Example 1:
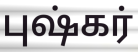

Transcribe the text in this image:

புஷ்கர்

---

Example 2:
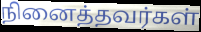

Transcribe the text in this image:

நினைத்தவர்கள்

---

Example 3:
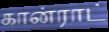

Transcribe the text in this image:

கான்ராட்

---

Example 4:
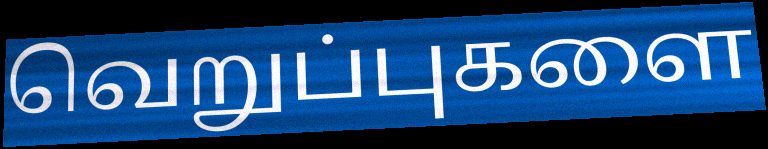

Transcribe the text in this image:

வெறுப்புகளை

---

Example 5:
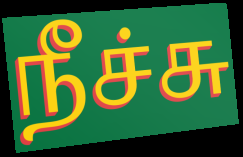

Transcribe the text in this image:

நீச்சு